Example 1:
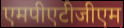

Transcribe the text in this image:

एमपीएटीजीएम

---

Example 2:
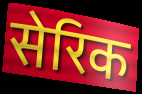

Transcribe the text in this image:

सेरिक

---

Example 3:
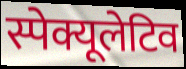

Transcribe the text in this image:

स्पेक्यूलेटिव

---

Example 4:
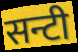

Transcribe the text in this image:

सन्टी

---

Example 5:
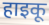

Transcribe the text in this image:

हाइकू